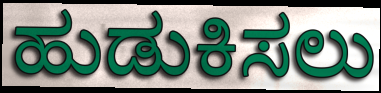
ಹುಡುಕಿಸಲು